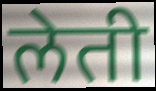
लेती